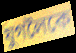
যুগলৈকে